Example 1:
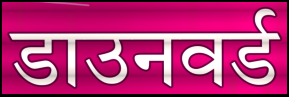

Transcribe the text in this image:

डाउनवर्ड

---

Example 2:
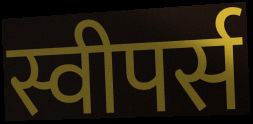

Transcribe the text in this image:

स्वीपर्स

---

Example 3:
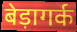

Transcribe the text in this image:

बेड़ागर्क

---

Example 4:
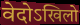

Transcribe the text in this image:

वेदोऽखिलो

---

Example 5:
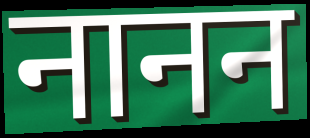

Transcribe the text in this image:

नानन